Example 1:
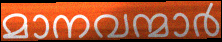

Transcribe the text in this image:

മാനവന്മാർ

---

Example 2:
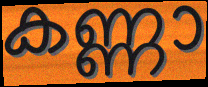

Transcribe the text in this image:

കണ്ണാ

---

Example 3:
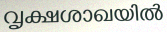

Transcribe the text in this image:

വൃക്ഷശാഖയിൽ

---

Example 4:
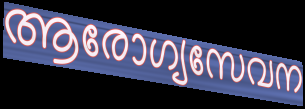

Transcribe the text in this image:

ആരോഗ്യസേവന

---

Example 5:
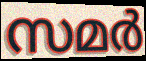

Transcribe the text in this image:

സമർ